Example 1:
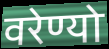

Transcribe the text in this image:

वरेण्यो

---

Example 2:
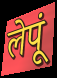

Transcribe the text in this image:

लेपूं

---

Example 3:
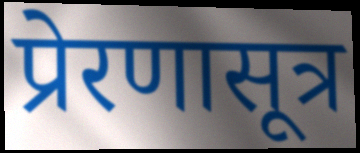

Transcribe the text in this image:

प्रेरणासूत्र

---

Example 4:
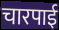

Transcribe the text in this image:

चारपाई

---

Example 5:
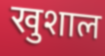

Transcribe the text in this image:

खुशाल